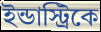
ইন্ডাস্ট্রিকে